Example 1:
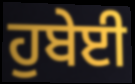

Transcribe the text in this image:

ਹੁਬੇਈ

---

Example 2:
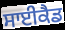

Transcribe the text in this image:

ਸਾਈਕੈਡ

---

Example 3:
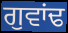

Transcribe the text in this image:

ਗੁਵਾਂਢ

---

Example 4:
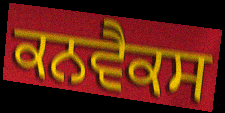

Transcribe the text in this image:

ਕਨਵੈਕਸ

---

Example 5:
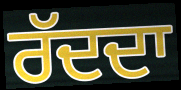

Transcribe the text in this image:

ਰੱਦਦਾ